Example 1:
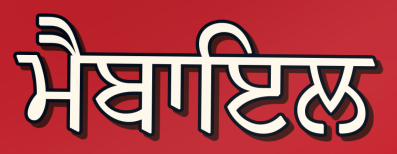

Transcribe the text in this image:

ਮੈਬਾਇਲ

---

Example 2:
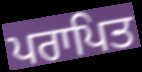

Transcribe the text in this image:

ਪਰਾਪਿਤ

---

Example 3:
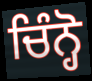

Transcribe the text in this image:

ਚਿੰਨ੍ਹੋ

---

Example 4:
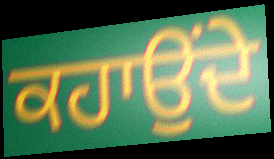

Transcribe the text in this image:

ਕਹਾਉਂਦੇ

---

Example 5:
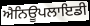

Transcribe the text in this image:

ਐਨਿਊਪਲਾਇਡੀ